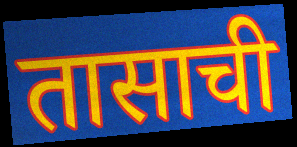
तासाची